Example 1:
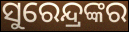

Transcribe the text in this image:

ସୁରେନ୍ଦ୍ରଙ୍କର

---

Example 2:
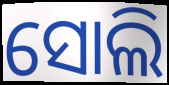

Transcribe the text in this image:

ସୋଲି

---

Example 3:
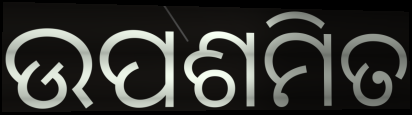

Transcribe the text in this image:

ଉପଶମିତ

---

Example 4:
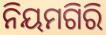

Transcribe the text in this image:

ନିୟମଗିରି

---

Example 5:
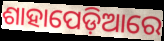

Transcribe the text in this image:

ଶାହାପେଡ଼ିଆରେ